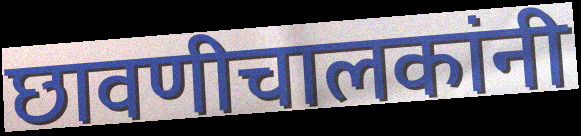
छावणीचालकांनी